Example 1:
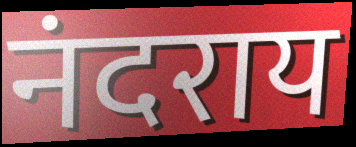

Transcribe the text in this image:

नंदराय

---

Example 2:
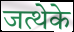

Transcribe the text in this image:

जत्थेके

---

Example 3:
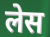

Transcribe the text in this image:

लेस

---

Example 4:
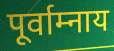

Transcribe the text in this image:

पूर्वाम्नाय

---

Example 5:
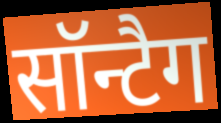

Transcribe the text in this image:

सॉन्टैग